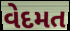
વેદમત